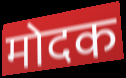
मोदक